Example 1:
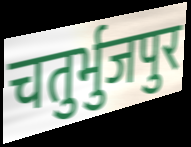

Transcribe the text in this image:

चतुर्भुजपुर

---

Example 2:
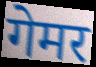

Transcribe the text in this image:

गेमर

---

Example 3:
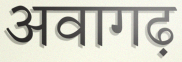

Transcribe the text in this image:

अवागढ़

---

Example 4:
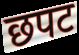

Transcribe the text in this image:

छपट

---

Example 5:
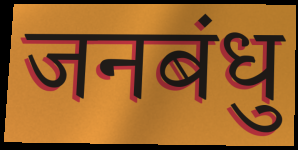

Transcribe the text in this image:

जनबंधु